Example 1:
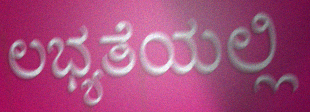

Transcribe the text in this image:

ಲಭ್ಯತೆಯಲ್ಲಿ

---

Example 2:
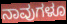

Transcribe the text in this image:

ನಾವುಗಳೂ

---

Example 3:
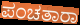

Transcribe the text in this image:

ಪಂಚತಾರಾ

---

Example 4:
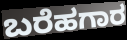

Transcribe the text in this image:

ಬರೆಹಗಾರ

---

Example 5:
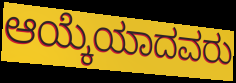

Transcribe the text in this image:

ಆಯ್ಕೆಯಾದವರು